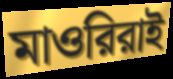
মাওরিরাই